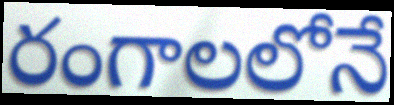
రంగాలలోనే